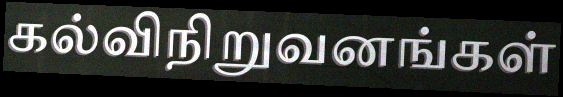
கல்விநிறுவனங்கள்